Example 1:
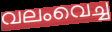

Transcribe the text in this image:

വലംവെച്ച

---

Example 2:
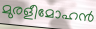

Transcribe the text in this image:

മുരളീമോഹൻ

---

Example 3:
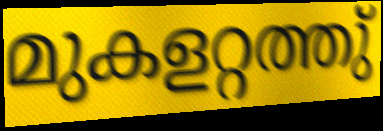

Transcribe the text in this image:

മുകളറ്റത്തു്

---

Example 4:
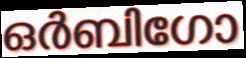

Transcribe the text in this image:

ഒർബിഗോ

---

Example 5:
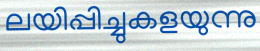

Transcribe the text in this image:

ലയിപ്പിച്ചുകളയുന്നു